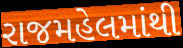
રાજમહેલમાંથી